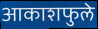
आकाशफुले